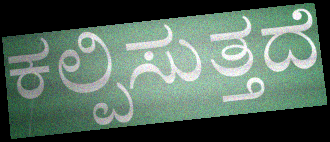
ಕಲ್ಪಿಸುತ್ತದೆ